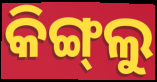
କିଙ୍ଗ୍‌ଲୁ